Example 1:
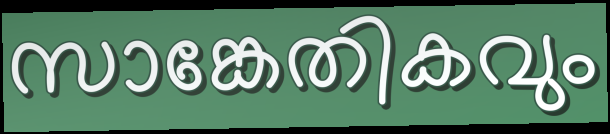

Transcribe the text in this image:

സാങ്കേതികവും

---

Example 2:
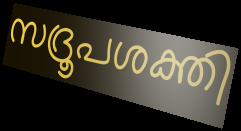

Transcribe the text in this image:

സദ്രൂപശക്തി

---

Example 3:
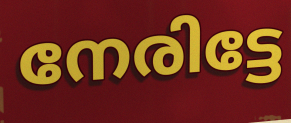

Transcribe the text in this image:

നേരിട്ടേ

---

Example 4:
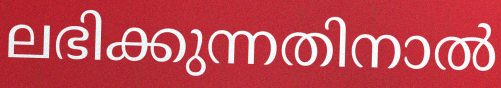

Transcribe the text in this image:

ലഭിക്കുന്നതിനാൽ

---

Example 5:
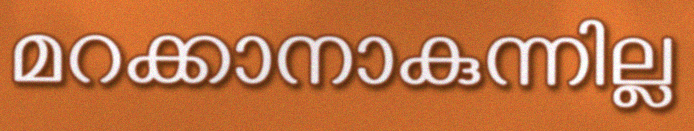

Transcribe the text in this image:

മറക്കാനാകുന്നില്ല